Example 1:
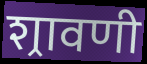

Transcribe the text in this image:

श्रावणी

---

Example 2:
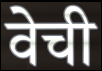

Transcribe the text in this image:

वेची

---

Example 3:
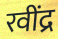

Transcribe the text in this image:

रवींद्र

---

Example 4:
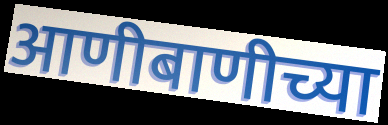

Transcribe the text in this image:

आणीबाणीच्या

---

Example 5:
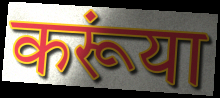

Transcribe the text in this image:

करूंया